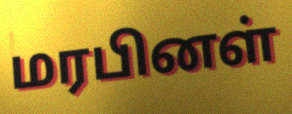
மரபினள்